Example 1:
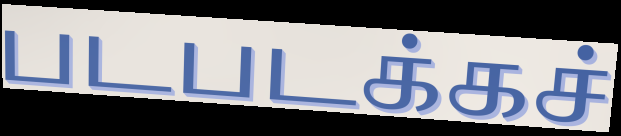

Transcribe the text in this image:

படபடக்கச்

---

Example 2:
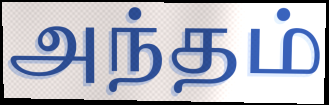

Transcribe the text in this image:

அந்தம்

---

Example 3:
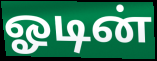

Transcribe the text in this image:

ஓடின்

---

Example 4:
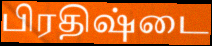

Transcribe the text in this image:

பிரதிஷ்டை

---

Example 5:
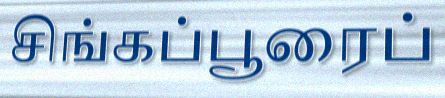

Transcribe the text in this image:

சிங்கப்பூரைப்